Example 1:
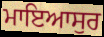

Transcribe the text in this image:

ਮਾਇਆਸੁਰ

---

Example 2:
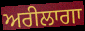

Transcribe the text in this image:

ਅਰੀਲਾਗਾ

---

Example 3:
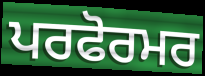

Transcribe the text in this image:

ਪਰਫੋਰਮਰ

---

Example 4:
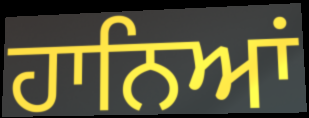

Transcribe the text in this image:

ਹਾਨਿਆਂ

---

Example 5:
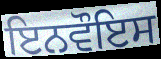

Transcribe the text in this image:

ਇਨਵੌਇਸ